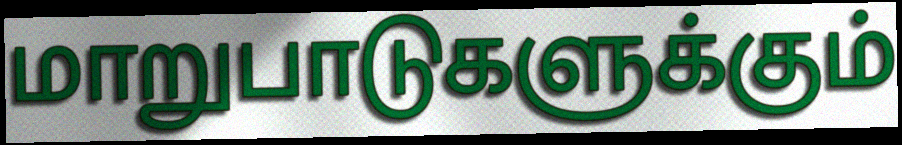
மாறுபாடுகளுக்கும்